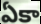
ఏకా